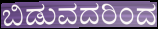
ಬಿಡುವದರಿಂದ